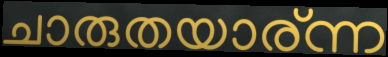
ചാരുതയാര്ന്ന